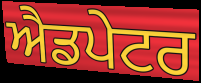
ਐਡਪੇਟਰ